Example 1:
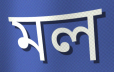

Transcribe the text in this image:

মল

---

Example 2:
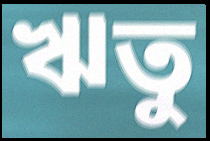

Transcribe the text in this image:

ঋতু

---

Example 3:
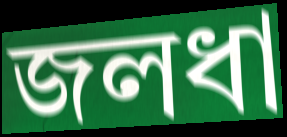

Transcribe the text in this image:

জলধা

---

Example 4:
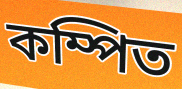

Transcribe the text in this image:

কম্পিত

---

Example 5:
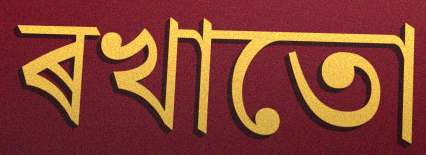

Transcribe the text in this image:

ৰখাতো